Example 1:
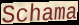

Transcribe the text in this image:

Schama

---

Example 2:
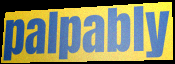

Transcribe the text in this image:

palpably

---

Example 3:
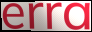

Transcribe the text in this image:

erra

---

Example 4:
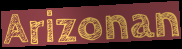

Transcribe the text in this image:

Arizonan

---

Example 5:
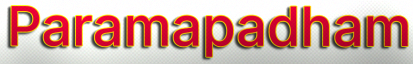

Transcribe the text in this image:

Paramapadham